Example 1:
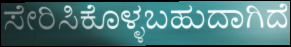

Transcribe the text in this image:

ಸೇರಿಸಿಕೊಳ್ಳಬಹುದಾಗಿದೆ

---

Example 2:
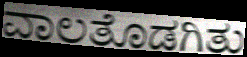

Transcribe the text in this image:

ವಾಲತೊಡಗಿತು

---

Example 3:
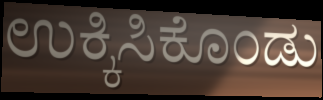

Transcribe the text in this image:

ಉಕ್ಕಿಸಿಕೊಂಡು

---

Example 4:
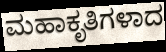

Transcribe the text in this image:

ಮಹಾಕೃತಿಗಳಾದ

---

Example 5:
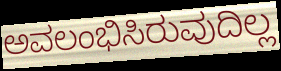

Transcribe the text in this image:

ಅವಲಂಭಿಸಿರುವುದಿಲ್ಲ